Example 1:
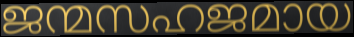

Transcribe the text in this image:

ജന്മസഹജമായ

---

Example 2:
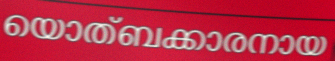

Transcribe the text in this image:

യൊത്ബക്കാരനായ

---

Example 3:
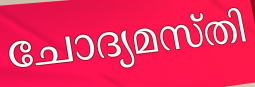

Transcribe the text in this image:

ചോദ്യമസ്തി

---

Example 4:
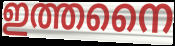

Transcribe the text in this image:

ഇത്തനൈ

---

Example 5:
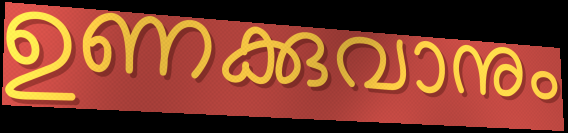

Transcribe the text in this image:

ഉണക്കുവാനും